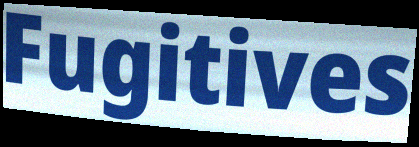
Fugitives